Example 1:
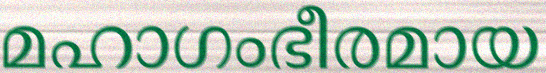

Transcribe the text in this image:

മഹാഗംഭീരമായ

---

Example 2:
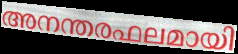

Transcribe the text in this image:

അനന്തരഫലമായി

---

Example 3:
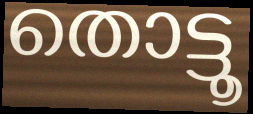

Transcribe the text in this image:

തൊട്ടൂ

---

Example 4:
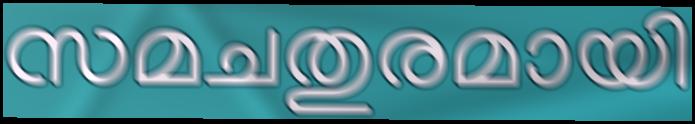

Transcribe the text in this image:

സമചതുരമായി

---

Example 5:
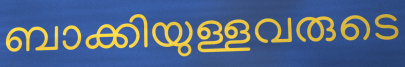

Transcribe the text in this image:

ബാക്കിയുള്ളവരുടെ